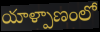
యాళ్పాణంలో